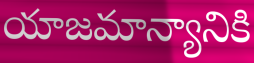
యాజమాన్యానికి